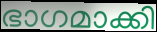
ഭാഗമാക്കി